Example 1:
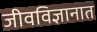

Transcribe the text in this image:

जीवविज्ञानात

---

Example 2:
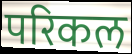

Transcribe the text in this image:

परिकल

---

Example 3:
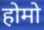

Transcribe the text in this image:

होमो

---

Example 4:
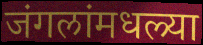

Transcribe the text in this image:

जंगलांमधल्या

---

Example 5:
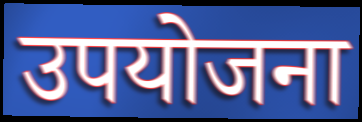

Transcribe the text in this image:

उपयोजना